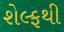
શેલ્ફથી